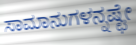
ಸಾಮಾನುಗಳನ್ನಷ್ಟೇ